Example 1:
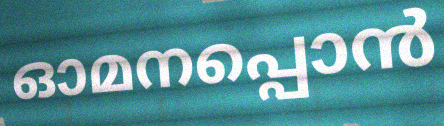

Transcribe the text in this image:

ഓമനപ്പൊൻ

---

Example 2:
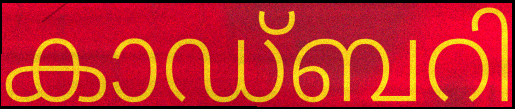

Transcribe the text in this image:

കാഡ്ബറി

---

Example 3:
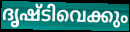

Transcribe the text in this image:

ദൃഷ്ടിവെക്കും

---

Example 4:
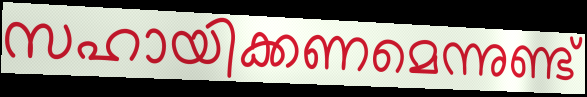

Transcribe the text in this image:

സഹായിക്കണമെന്നുണ്ട്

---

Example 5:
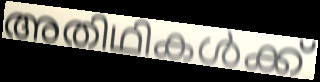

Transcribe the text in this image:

അതിഥികൾക്ക്